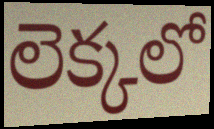
లెక్కలో